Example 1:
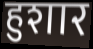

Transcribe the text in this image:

हुशार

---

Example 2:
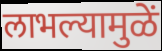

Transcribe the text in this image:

लाभल्यामुळें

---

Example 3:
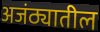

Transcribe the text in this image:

अजंठ्यातील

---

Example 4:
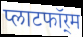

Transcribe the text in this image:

प्लाटफॉर्म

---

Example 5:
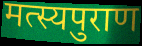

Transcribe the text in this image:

मत्स्यपुराण